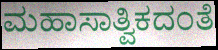
ಮಹಾಸಾತ್ವಿಕದಂತೆ